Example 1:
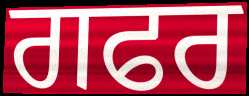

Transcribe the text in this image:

ਗਫਰ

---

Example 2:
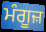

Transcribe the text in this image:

ਮੰਗੂਜ਼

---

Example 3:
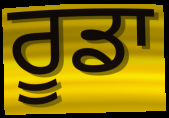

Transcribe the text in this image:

ਰੂਡਾ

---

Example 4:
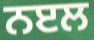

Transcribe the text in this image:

ਨੲਲ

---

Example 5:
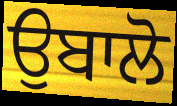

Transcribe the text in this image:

ਉਬਾਲੋ